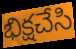
భిక్షచేసి